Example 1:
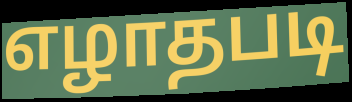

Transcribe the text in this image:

எழாதபடி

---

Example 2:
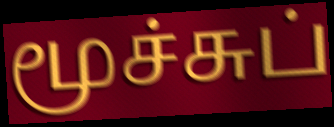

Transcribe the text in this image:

மூச்சுப்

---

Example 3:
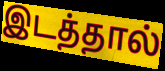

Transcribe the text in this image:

இடத்தால்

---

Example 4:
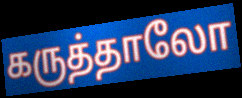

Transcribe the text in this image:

கருத்தாலோ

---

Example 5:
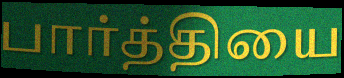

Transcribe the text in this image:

பார்த்தியை